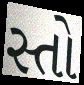
સ્તો